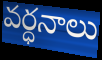
వర్ధనాలు